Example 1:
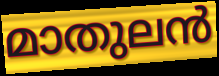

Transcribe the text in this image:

മാതുലൻ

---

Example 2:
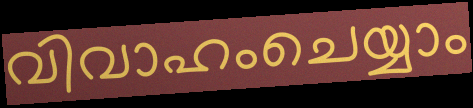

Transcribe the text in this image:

വിവാഹംചെയ്യാം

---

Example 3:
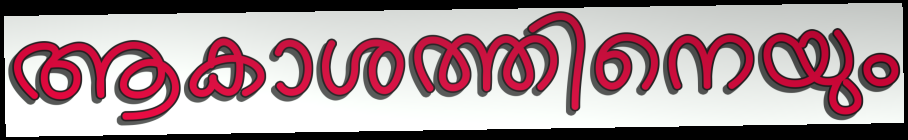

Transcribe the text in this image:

ആകാശത്തിനെയും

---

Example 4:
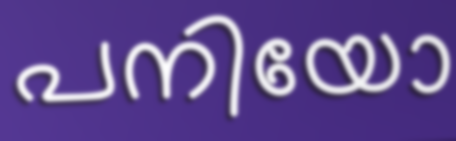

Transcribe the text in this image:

പനിയോ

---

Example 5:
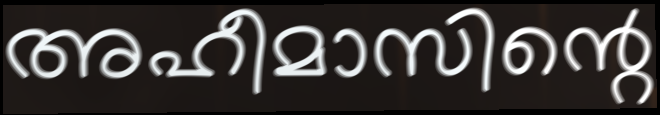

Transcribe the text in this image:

അഹീമാസിന്റെ